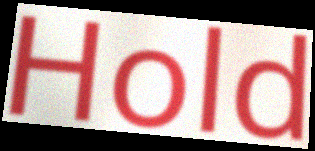
Hold